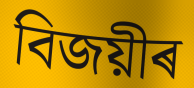
বিজয়ীৰ